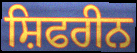
ਸ਼ਿਫਰੀਨ